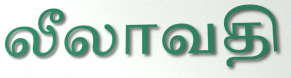
லீலாவதி